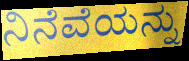
ನಿನೆವೆಯನ್ನು